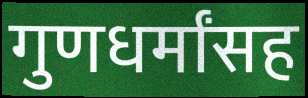
गुणधर्मांसह